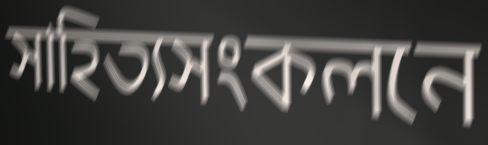
সাহিত্যসংকলনে